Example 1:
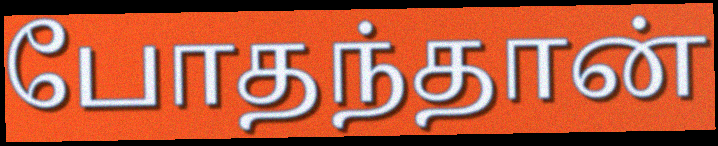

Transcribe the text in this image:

போதந்தான்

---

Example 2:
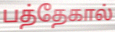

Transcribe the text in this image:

பத்தேகால்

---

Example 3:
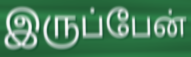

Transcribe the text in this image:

இருப்பேன்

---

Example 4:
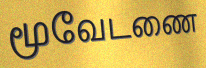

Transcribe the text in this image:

மூவேடணை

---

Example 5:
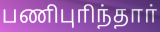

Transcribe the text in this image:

பணிபுரிந்தார்